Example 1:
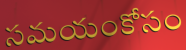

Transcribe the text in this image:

సమయంకోసం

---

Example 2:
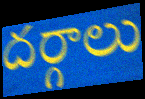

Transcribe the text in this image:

దర్గాలు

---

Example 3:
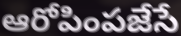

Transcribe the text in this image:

ఆరోపింపజేసే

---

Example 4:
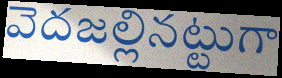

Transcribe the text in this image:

వెదజల్లినట్టుగా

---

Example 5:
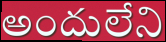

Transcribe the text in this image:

అందులేని